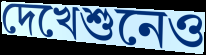
দেখেশুনেও